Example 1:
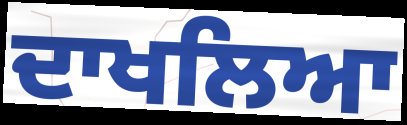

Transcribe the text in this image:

ਦਾਖਲਿਆ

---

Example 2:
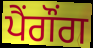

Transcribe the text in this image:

ਪੈਂਗੌਂਗ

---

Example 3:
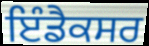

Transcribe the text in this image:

ਇੰਡੈਕਸਰ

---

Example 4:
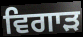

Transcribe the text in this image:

ਵਿਗਾਡ਼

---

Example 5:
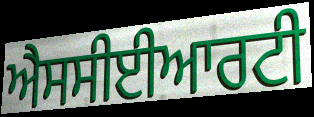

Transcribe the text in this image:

ਐਸਸੀਈਆਰਟੀ